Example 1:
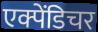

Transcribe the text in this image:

एक्पेंडिचर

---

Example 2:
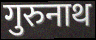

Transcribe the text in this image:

गुरुनाथ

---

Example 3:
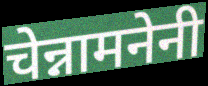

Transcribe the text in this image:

चेन्नामनेनी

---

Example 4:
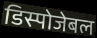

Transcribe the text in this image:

डिस्पोजेबल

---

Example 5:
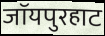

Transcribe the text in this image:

जॉयपुरहाट